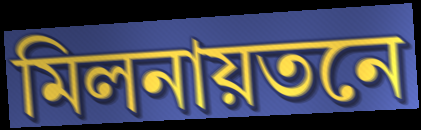
মিলনায়তনে